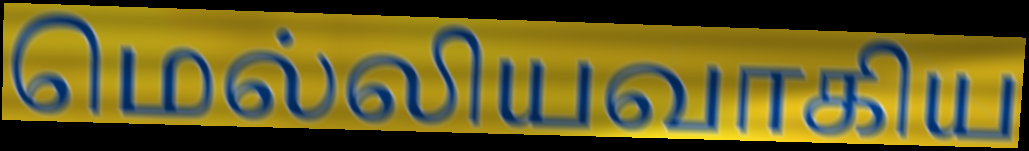
மெல்லியவாகிய